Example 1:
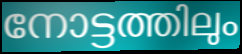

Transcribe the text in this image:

നോട്ടത്തിലും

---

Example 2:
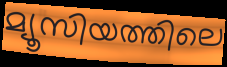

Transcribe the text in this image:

മ്യൂസിയത്തിലെ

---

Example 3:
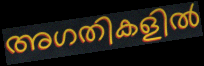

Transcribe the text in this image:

അഗതികളിൽ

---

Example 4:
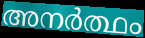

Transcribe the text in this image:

അനർത്ഥം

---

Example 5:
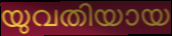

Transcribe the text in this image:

യുവതിയായ